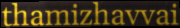
thamizhavvai